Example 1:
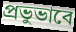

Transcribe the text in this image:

প্রভুভাবে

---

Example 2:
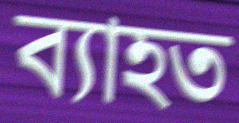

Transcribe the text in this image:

ব্যাহত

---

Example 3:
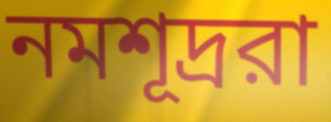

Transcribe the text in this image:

নমশূদ্ররা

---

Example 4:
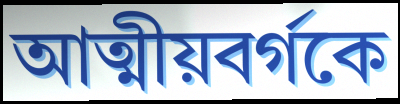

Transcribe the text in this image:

আত্মীয়বর্গকে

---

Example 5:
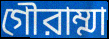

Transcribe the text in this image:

গৌরাম্মা